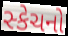
સ્કેચનો